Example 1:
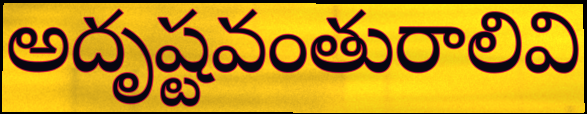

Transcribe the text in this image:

అదృష్టవంతురాలివి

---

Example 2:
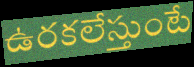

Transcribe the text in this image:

ఉరకలేస్తుంటే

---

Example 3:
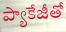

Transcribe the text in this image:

ప్యాకేజీతో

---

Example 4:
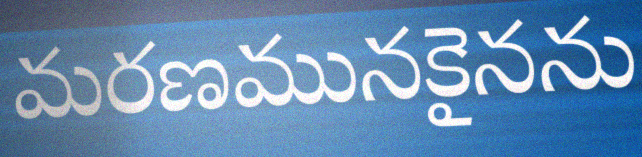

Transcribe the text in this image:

మరణమునకైనను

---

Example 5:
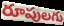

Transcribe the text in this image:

రూపులగు